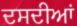
ਦਸਦੀਆਂ